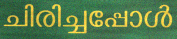
ചിരിച്ചപ്പോൾ